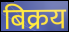
बिक्रय